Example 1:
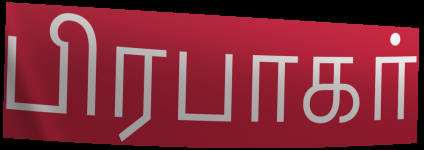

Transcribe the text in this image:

பிரபாகர்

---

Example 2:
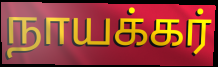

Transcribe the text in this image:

நாயக்கர்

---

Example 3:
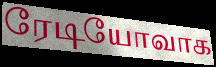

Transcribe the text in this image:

ரேடியோவாக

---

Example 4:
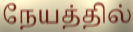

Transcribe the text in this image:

நேயத்தில்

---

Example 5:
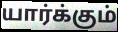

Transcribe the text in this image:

யார்க்கும்